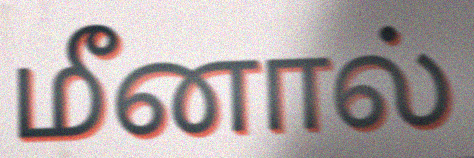
மீனால்